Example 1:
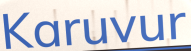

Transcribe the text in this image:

Karuvur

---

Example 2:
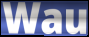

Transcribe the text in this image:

Wau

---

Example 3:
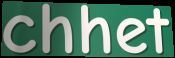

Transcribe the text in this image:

chhet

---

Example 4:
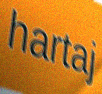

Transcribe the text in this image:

hartaj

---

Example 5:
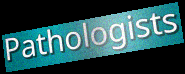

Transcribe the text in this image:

Pathologists